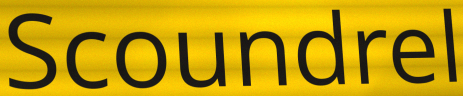
Scoundrel